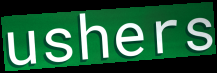
ushers